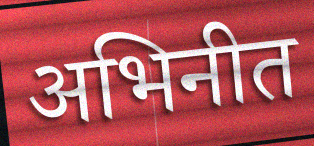
अभिनीत